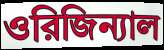
ওরিজিন্যাল